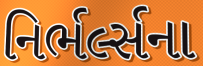
નિર્ભર્લ્સના